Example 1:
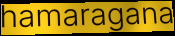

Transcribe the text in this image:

hamaragana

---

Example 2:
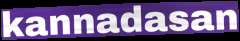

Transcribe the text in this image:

kannadasan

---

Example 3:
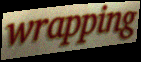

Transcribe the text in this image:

wrapping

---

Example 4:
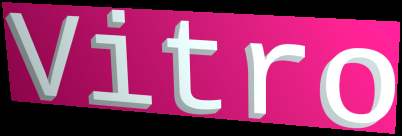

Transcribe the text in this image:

Vitro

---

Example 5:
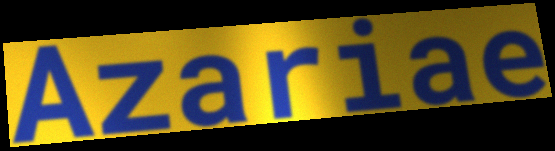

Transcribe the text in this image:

Azariae